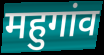
महुगांव